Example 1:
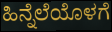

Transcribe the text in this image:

ಹಿನ್ನೆಲೆಯೊಳಗೆ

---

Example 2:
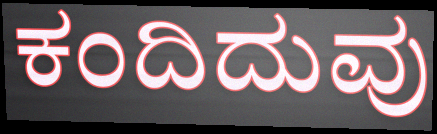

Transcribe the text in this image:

ಕಂದಿದುವು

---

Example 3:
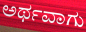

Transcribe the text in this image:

ಅರ್ಥವಾಗು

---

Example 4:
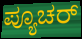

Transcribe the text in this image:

ಪ್ಯೂಚರ್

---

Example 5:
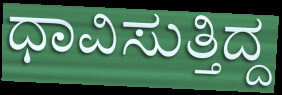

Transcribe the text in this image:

ಧಾವಿಸುತ್ತಿದ್ದ